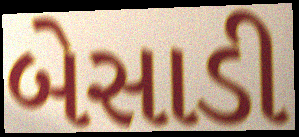
બેસાડી